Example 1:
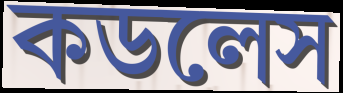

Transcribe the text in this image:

কডলেস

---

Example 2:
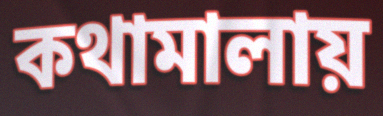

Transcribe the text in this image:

কথামালায়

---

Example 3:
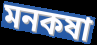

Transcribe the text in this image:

মনকষা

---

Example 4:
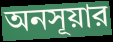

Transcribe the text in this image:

অনসূয়ার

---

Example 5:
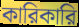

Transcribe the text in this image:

কারিকারি